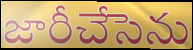
జారీచేసెను